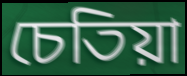
চেতিয়া